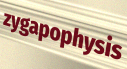
zygapophysis